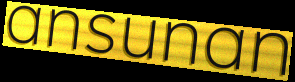
ansunan